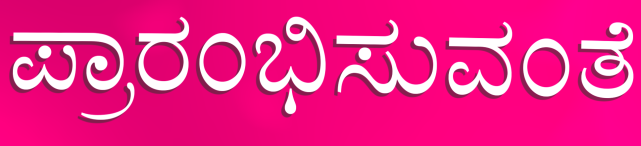
ಪ್ರಾರಂಭಿಸುವಂತೆ